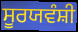
ਸੂਰਯਵੰਸ਼ੀ